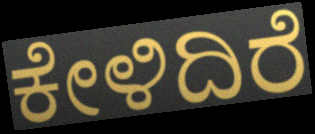
ಕೇಳಿದಿರೆ